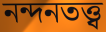
নন্দনতত্ত্ব